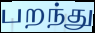
பறந்து